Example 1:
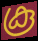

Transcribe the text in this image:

കൂ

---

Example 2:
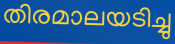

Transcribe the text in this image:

തിരമാലയടിച്ചു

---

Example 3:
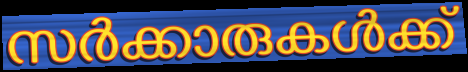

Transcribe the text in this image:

സർക്കാരുകൾക്ക്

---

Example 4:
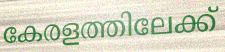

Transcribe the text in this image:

കേരളത്തിലേക്ക്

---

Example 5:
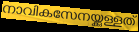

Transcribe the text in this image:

നാവികസേനയ്ക്കുള്ളത്